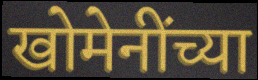
खोमेनींच्या